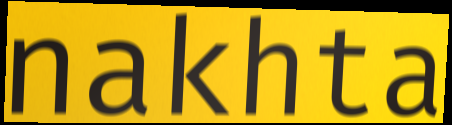
nakhta